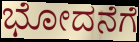
ಭೋದನೆಗೆ